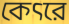
কেৎরে